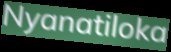
Nyanatiloka